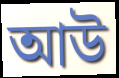
আউ